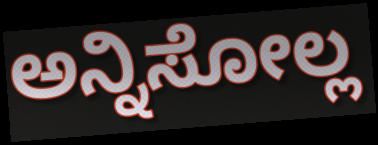
ಅನ್ನಿಸೋಲ್ಲ